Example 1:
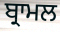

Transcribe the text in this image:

ਬ੍ਰਾਮਲ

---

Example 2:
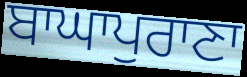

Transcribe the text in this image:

ਬਾਘਾਪੁਰਾਣਾ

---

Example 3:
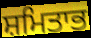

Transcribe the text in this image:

ਸ਼ਮਿਤਾਭ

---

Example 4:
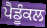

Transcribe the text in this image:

ਪੈਡੂੰਕਲ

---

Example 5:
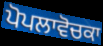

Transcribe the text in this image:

ਪੋਪਲਾਵੋਚਕਾ